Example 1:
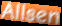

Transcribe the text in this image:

Allsen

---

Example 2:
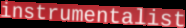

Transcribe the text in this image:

instrumentalist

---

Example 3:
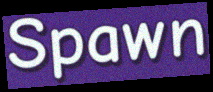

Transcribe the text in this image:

Spawn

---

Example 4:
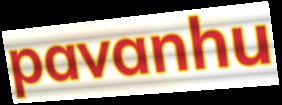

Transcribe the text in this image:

pavanhu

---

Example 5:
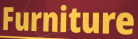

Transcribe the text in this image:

Furniture